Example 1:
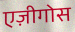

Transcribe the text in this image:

एज़ीगोस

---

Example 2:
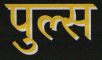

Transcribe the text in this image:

पुल्स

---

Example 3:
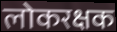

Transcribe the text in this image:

लोकरक्षक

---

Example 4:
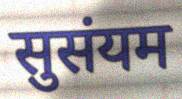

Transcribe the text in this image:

सुसंयम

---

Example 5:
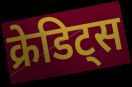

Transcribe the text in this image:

क्रेडिट्स